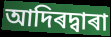
আদিৰদ্বাৰা